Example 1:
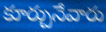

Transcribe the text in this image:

కూర్చునేవారు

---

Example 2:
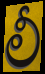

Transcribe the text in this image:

లీ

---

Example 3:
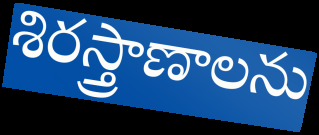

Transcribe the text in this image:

శిరస్త్రాణాలను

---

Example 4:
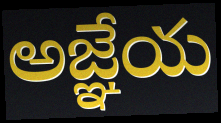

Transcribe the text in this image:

అజ్ఞేయ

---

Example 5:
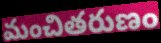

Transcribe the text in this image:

మంచితరుణం